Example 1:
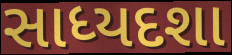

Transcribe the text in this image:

સાધ્યદશા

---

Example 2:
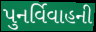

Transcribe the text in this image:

પુનર્વિવાહની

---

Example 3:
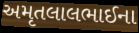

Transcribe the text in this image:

અમૃતલાલભાઈના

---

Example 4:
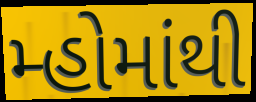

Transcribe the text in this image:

મ્હોમાંથી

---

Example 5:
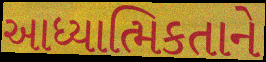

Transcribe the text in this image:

આધ્યાત્મિકતાને